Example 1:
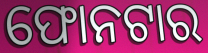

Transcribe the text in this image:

ଫୋନଟାର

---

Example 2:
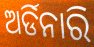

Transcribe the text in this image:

ଅର୍ଡିନାରି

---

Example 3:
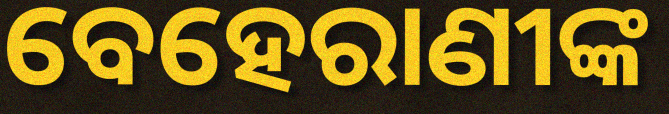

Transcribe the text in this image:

ବେହେରାଣୀଙ୍କ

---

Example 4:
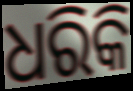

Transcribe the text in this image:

ଧରିକି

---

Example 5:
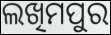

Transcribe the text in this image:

ଲଖିମପୁର